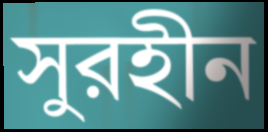
সুরহীন